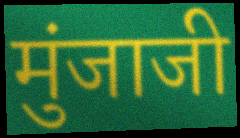
मुंजाजी